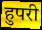
हुपरी